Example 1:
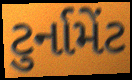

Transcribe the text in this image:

ટુર્નામેંટ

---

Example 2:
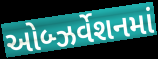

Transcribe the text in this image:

ઓબ્ઝર્વેશનમાં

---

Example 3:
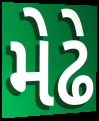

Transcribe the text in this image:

મેઢે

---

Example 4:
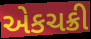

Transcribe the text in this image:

એકચક્રી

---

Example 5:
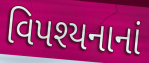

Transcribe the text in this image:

વિપશ્યનાનાં